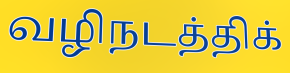
வழிநடத்திக்